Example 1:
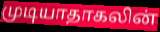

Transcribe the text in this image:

முடியாதாகலின்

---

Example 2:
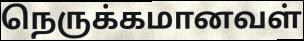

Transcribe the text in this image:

நெருக்கமானவள்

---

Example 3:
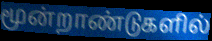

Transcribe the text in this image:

மூன்றாண்டுகளில்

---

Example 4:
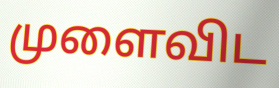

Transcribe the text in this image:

முளைவிட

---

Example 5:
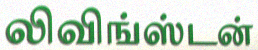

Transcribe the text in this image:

லிவிங்ஸ்டன்